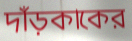
দাঁড়কাকের